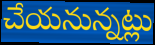
చేయనున్నట్లు